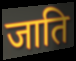
जाति